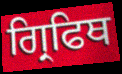
ਗ੍ਰਿਫਿਥ